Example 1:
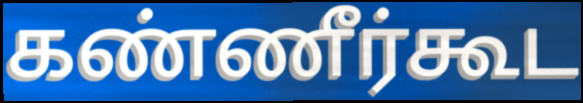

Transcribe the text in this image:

கண்ணீர்கூட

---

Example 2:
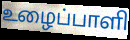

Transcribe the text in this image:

உழைப்பாளி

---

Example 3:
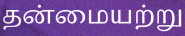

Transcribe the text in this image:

தன்மையற்று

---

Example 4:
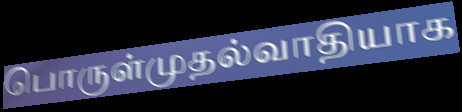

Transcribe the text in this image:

பொருள்முதல்வாதியாக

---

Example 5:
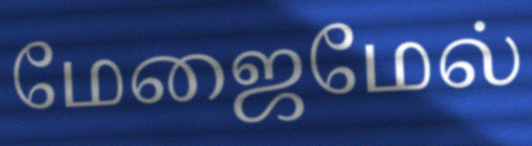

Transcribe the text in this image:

மேஜைமேல்